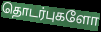
தொடர்புகளோ